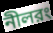
নীলরং